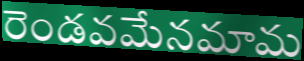
రెండవమేనమామ